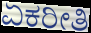
ಏಕರೀತಿ